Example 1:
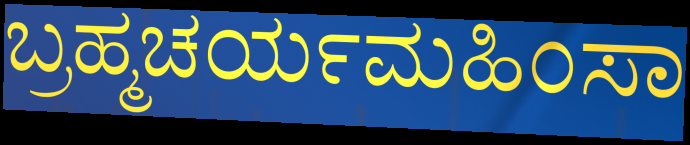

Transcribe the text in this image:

ಬ್ರಹ್ಮಚರ್ಯಮಹಿಂಸಾ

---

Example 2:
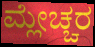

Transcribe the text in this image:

ಮ್ಲೇಚ್ಚರ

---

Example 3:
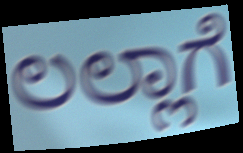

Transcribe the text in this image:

ಲಲ್ಲಾಗೆ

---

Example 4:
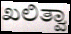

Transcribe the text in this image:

ಖಲಿತ್ವಾ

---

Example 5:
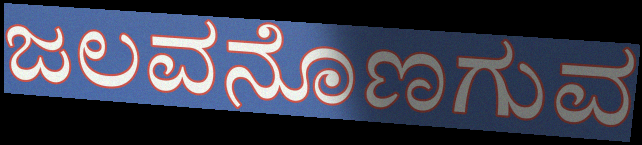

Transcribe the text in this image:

ಜಲವನೊಣಗುವ